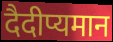
दैदीप्यमान